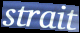
strait